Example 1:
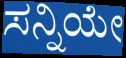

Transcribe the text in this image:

ಸನ್ನಿಯೇ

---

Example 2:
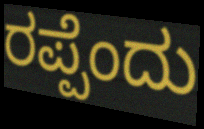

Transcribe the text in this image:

ರಪ್ಪೆಂದು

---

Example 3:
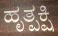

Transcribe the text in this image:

ಹೃತ್ಪಕ್ಷಿ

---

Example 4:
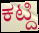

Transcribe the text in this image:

ಕಟ್ದಿ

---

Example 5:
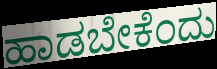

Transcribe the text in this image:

ಹಾಡಬೇಕೆಂದು